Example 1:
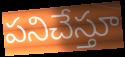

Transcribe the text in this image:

పనిచేస్తూ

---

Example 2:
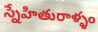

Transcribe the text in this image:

స్నేహితురాళ్ళం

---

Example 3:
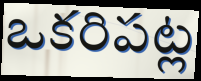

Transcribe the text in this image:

ఒకరిపట్ల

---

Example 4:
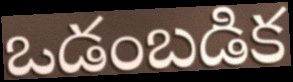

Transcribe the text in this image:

ఒడంబడిక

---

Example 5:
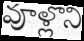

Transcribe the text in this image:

వూళ్లొని